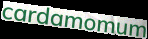
cardamomum